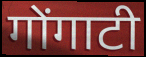
गोंगाटी